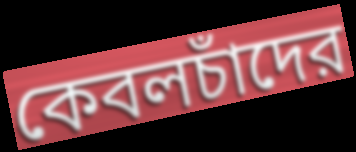
কেবলচাঁদের